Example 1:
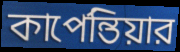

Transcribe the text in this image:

কার্পেন্তিয়ার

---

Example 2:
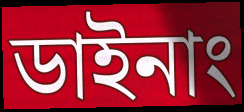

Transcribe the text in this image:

ডাইনাং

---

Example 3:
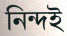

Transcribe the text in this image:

নিন্দই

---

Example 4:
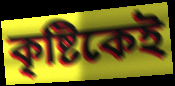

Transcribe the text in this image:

কৃষ্টিকেই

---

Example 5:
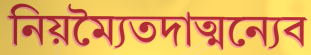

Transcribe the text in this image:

নিয়ম্যৈতদাত্মন্যেব